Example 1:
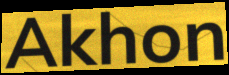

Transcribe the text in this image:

Akhon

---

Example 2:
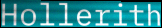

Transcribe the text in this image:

Hollerith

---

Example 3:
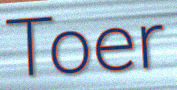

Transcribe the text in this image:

Toer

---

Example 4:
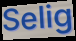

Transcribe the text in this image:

Selig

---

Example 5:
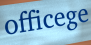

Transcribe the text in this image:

officege